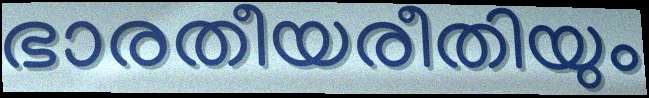
ഭാരതീയരീതിയും